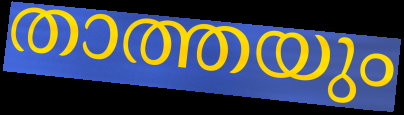
താത്തയും